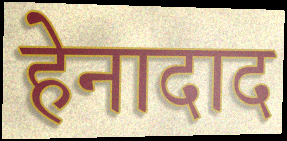
हेनादाद